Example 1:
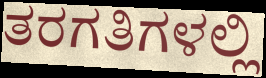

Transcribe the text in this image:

ತರಗತಿಗಳಲ್ಲಿ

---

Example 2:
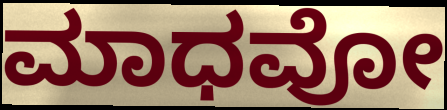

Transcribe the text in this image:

ಮಾಧವೋ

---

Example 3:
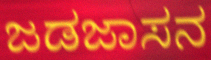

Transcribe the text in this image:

ಜಡಜಾಸನ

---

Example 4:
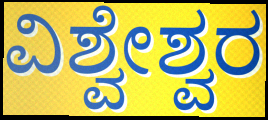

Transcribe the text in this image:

ವಿಶ್ವೇಶ್ವರ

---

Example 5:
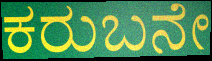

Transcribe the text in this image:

ಕರುಬನೇ